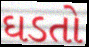
ઘડતો